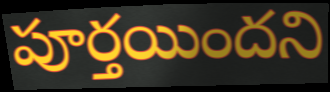
పూర్తయిందని